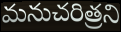
మనుచరిత్రని